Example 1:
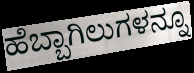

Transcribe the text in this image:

ಹೆಬ್ಬಾಗಿಲುಗಳನ್ನೂ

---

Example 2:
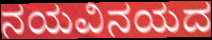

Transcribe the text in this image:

ನಯವಿನಯದ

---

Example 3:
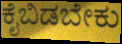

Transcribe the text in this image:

ಕೈಬಿಡಬೇಕು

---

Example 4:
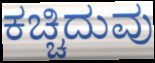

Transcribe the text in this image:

ಕಚ್ಚಿದುವು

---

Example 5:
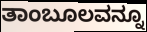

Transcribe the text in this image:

ತಾಂಬೂಲವನ್ನೂ